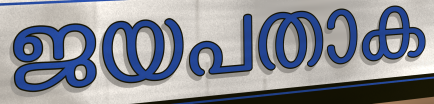
ജയപതാക